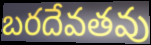
బరదేవతవు